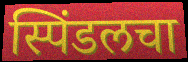
स्पिंडलचा